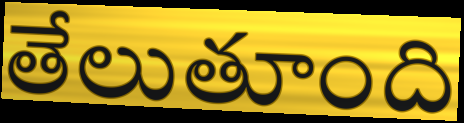
తేలుతూంది